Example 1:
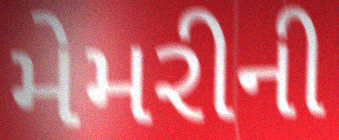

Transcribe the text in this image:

મેમરીની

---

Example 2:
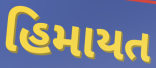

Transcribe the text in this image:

હિમાયત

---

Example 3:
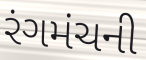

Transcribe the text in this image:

રંગમંચની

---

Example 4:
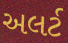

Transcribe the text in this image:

અલર્ટ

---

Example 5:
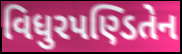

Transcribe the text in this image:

વિધુરપણ્ડિતેન